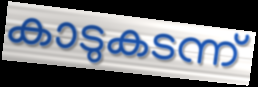
കാടുകടന്ന്